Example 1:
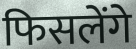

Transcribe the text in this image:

फिसलेंगे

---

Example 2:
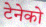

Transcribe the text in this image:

टेनेको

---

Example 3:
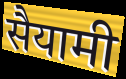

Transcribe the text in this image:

सैयामी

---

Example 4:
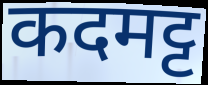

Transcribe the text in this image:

कदमट्ट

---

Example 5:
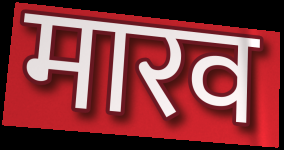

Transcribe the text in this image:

मारव